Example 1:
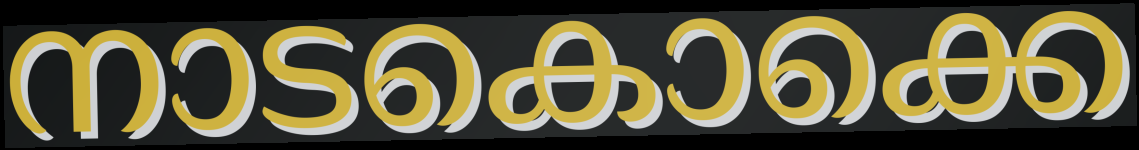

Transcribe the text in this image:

നാടകൊക്കെ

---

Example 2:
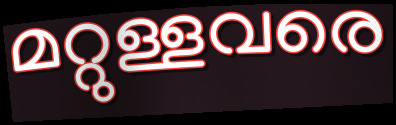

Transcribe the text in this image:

മറ്റുള്ളവരെ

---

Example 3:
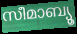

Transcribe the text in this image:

സീമാബ്യൂ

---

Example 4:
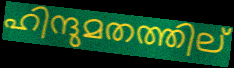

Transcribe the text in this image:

ഹിന്ദുമതത്തില്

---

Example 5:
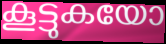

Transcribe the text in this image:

കൂട്ടുകയോ